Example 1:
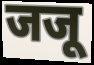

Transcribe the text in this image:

जजू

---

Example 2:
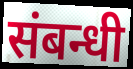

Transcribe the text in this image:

संबन्धी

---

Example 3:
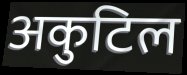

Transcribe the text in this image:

अकुटिल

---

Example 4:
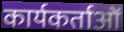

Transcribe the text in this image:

कार्यकर्ताओं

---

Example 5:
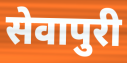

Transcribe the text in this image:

सेवापुरी